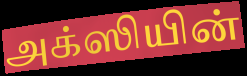
அக்ஸியின்